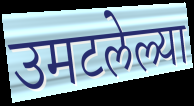
उमटलेल्या